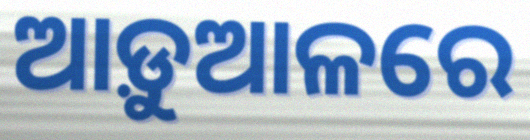
ଆଡ଼ୁଆଳରେ